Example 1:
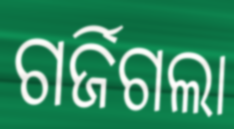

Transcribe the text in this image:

ଗର୍ଜିଗଲା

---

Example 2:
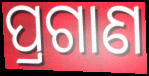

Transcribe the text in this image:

ପ୍ରଗାଣ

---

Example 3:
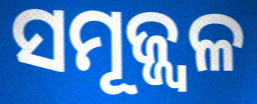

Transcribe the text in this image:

ସମୂଜ୍ଜ୍ୱଳ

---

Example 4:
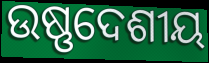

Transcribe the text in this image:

ଉଷ୍ଣଦେଶୀୟ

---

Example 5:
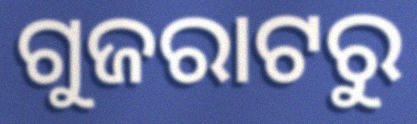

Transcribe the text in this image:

ଗୁଜରାଟରୁ